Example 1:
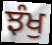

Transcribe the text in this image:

ਝੰਖੁ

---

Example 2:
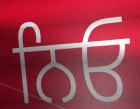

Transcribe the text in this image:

ਨਿਓ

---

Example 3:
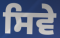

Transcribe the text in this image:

ਸਿਵੇ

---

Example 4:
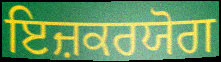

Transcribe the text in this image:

ਇਜ਼ਕਰਯੋਗ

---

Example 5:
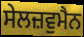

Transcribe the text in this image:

ਸੇਲਜ਼ਵੁਮੈਨ